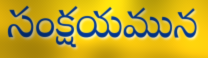
సంక్షయమున